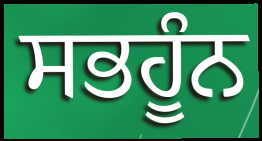
ਸਭਹੂੰਨ